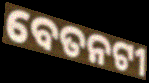
ବେତନଟୀ